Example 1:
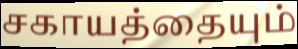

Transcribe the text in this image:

சகாயத்தையும்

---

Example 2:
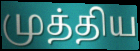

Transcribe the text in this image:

முத்திய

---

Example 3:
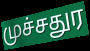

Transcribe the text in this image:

முச்சதுர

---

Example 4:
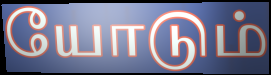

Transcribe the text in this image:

யோடும்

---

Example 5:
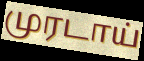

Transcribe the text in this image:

முரடாய்